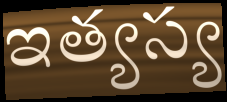
ఇత్యస్య